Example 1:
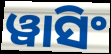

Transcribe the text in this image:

ୱାସିଂ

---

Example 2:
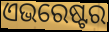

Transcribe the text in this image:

ଏଭରେଷ୍ଟର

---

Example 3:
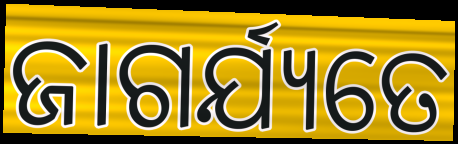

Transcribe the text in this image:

ଜାଗର୍ଯ୍ୟତେ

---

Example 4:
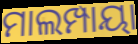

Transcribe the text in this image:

ମାଲମ୍ପାୟା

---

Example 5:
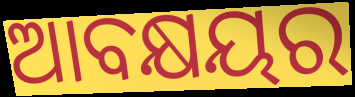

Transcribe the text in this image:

ଆବକ୍ଷୟର